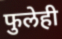
फुलेही